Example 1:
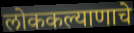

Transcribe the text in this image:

लोककल्याणाचे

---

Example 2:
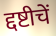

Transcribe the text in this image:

द्दष्टीचें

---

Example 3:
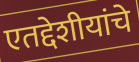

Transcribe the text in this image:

एतद्देशीयांचे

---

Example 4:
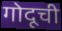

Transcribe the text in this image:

गोदूची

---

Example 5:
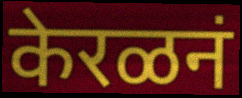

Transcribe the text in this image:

केरळनं